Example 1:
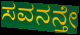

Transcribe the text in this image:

ಸವನನ್ತೇ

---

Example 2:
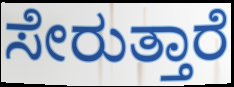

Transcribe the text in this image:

ಸೇರುತ್ತಾರೆ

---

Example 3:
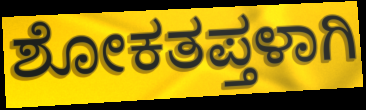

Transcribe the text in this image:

ಶೋಕತಪ್ತಳಾಗಿ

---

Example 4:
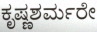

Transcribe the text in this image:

ಕೃಷ್ಣಶರ್ಮರೇ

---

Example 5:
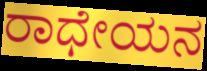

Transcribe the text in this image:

ರಾಧೇಯನ